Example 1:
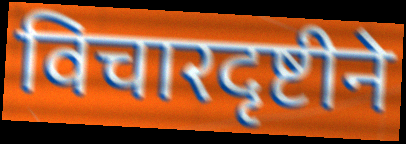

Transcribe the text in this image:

विचारदृष्टीने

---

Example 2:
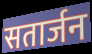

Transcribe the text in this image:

सतार्जन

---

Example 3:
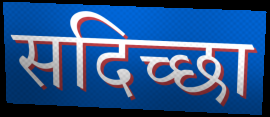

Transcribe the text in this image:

सदिच्छा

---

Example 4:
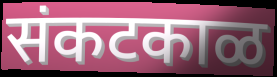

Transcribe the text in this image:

संकटकाळ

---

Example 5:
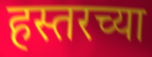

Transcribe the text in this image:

हस्तरच्या